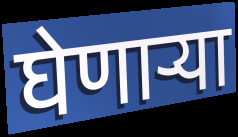
घेणार्‍या